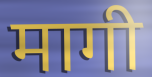
मागी